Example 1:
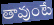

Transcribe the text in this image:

తావుంటే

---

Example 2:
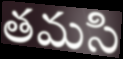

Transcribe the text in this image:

తమసి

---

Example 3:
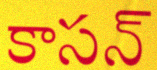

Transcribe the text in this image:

కాసన్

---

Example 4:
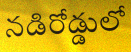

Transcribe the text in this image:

నడిరోడ్డులో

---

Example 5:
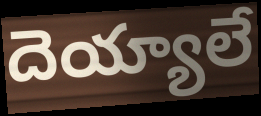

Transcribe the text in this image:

దెయ్యాలే